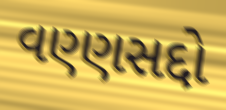
વણ્ણસદ્દો